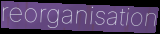
reorganisation